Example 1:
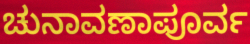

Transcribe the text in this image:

ಚುನಾವಣಾಪೂರ್ವ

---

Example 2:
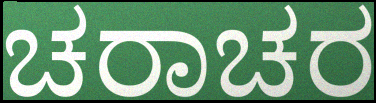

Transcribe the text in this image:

ಚರಾಚರ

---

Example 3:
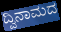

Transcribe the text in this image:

ದ್ವಿನಾಮದ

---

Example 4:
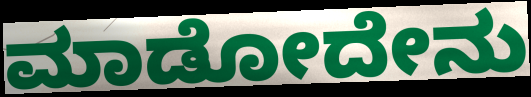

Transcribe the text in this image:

ಮಾಡೋದೇನು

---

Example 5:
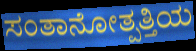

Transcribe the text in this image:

ಸಂತಾನೋತ್ಪತ್ತಿಯ